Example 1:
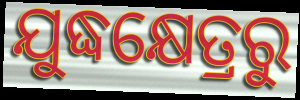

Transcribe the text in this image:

ଯୁଦ୍ଧକ୍ଷେତ୍ରରୁ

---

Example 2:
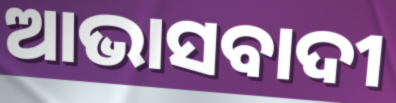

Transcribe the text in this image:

ଆଭାସବାଦୀ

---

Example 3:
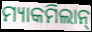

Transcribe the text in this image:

ମ୍ୟାକମିଲାନ୍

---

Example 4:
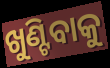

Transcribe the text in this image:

ଖୁଣ୍ଟିବାକୁ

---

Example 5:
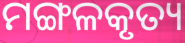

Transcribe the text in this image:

ମଙ୍ଗଳକୃତ୍ୟ